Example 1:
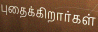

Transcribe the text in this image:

புதைக்கிறார்கள்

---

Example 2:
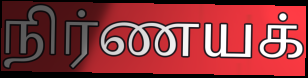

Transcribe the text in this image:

நிர்ணயக்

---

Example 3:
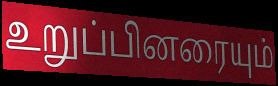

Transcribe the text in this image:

உறுப்பினரையும்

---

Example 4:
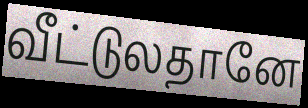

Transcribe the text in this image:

வீட்டுலதானே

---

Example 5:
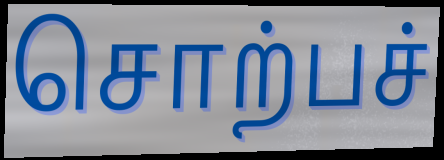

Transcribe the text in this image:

சொற்பச்